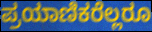
ಪ್ರಯಾಣಿಕರೆಲ್ಲರೂ